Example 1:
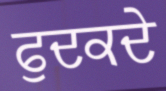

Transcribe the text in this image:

ਫੁਦਕਦੇ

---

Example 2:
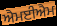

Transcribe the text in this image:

ਐਮਈਐਮ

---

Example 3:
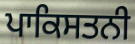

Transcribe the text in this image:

ਪਾਕਿਸਤਨੀ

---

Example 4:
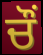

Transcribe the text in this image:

ਚੌਂ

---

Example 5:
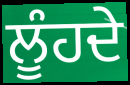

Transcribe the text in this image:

ਲੂੰਹਦੇ